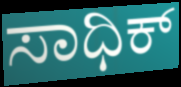
ಸಾಧಿಕ್